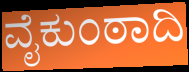
ವೈಕುಂಠಾದಿ